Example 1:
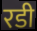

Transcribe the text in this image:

रडी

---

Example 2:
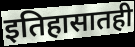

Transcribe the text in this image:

इतिहासातही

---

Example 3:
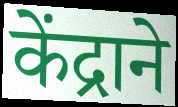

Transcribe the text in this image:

केंद्राने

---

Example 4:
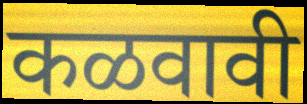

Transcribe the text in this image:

कळवावी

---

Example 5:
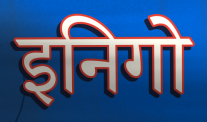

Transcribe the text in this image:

इनिगो